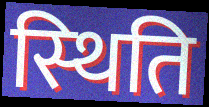
स्‍थिति